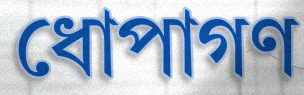
ধোপাগণ